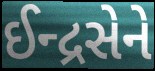
ઈન્દ્રસેને